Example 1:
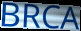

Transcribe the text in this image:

BRCA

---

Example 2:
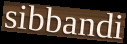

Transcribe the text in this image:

sibbandi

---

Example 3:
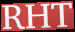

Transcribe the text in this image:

RHT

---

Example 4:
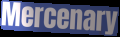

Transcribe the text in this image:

Mercenary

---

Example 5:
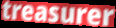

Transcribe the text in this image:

treasurer